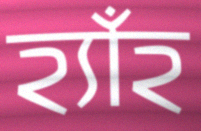
হ্যাঁহ